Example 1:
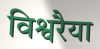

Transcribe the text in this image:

विश्वरैया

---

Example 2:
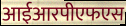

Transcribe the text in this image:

आईआरपीएफएस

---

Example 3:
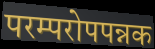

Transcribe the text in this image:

परम्परोपपन्नक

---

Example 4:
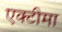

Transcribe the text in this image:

एक्टीमा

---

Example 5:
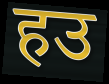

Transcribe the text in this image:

हउ